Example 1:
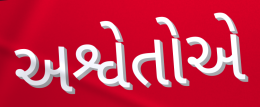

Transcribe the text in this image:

અશ્વેતોએ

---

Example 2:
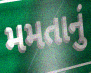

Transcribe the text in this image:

મમતાનું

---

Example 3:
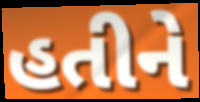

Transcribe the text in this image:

હતીને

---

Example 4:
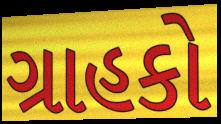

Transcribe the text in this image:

ગ્રાહકો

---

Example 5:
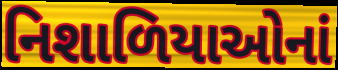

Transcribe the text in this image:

નિશાળિયાઓનાં